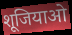
शूजियाओ